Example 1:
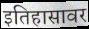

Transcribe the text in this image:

इतिहासावर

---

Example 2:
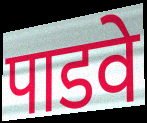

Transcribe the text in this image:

पाडवे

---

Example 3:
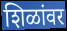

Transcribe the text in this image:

शिळांवर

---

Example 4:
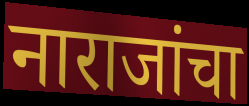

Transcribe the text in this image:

नाराजांचा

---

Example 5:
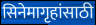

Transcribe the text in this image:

सिनेमागृहांसाठी